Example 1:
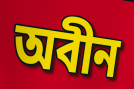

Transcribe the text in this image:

অবীন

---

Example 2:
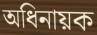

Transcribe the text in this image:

অধিনায়ক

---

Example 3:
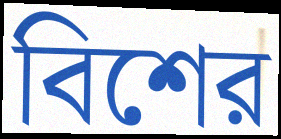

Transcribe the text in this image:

বিশের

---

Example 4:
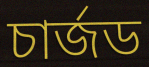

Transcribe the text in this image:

চার্জড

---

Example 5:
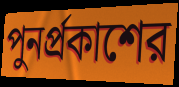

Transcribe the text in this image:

পুনর্প্রকাশের